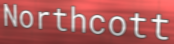
Northcott